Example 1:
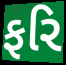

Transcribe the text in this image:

ફરિ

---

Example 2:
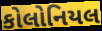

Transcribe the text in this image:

કોલોનિયલ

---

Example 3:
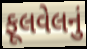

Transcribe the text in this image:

ફૂલવેલનું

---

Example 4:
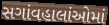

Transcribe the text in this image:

સગાંવહાલાંઓમાં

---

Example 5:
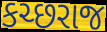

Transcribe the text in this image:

કચ્છરાજ